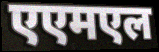
एएमएल